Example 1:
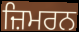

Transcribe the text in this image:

ਜ਼ਿਮਰਨ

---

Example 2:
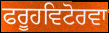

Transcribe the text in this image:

ਫਰੂਹਵਿਟੋਰਵਾ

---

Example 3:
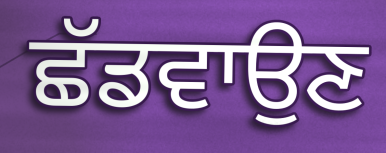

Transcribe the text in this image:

ਛੱਡਵਾਉਣ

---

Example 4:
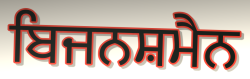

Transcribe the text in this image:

ਬਿਜਨਸ਼ਮੈਨ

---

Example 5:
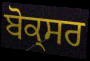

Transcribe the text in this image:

ਬੋਕ੍ਸਰ